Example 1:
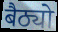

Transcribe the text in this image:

बैठ्यो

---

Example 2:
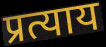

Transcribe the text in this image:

प्रत्याय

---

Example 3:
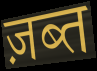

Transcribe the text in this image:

ज़ब्त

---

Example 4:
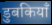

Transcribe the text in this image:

डुबकियाँ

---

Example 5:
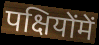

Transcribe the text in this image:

पक्षियोंमें